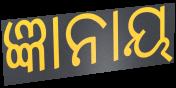
ଜ୍ଞାନାୟ